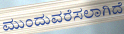
ಮುಂದುವರೆಸಲಾಗಿದೆ